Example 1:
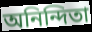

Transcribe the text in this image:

অনিন্দিতা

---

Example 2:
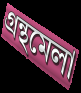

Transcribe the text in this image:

গ্ৰন্থমেলা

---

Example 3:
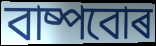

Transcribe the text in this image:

বাষ্পবোৰ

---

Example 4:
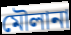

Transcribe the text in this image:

মৌলানা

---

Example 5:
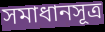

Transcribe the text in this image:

সমাধানসূত্ৰ